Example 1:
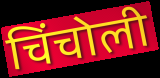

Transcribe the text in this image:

चिंचोली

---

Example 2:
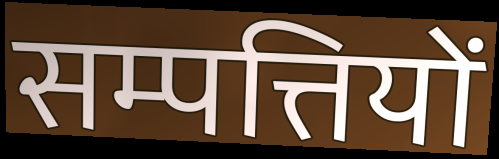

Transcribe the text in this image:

सम्‍पत्तियों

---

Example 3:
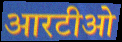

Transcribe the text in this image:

आरटीओ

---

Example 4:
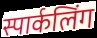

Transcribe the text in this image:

स्पार्कलिंग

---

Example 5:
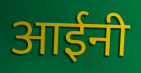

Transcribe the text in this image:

आईनी